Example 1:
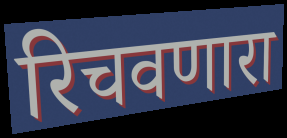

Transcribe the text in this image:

रिचवणारा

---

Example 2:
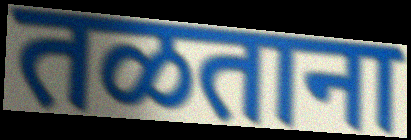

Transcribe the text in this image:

तळताना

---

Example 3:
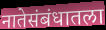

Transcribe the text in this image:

नातेसंबंधातला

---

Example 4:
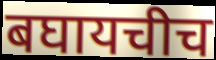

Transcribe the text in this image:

बघायचीच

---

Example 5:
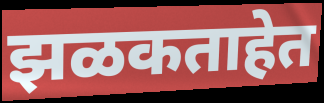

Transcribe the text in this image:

झळकताहेत